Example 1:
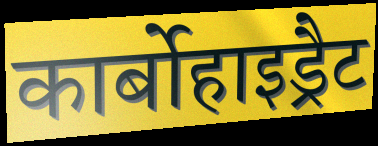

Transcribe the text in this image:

कार्बोहाइड्रैट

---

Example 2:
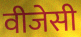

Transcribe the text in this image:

वीजेसी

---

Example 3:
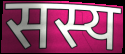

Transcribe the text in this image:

सस्य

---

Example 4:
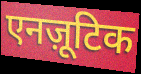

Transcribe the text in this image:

एनज़ूटिक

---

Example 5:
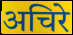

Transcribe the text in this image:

अचिरे